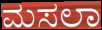
ಮಸಲಾ